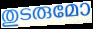
തുടരുമോ